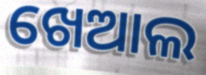
ଖେଆଲ